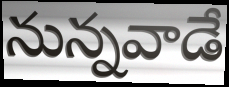
నున్నవాడే